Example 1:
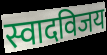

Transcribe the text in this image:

स्वादविजय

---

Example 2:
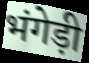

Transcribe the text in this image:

भंगेड़ी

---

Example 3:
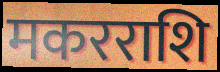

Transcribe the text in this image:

मकरराशि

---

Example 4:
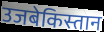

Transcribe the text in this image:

उजबेकिस्तान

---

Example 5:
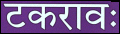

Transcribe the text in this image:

टकरावः